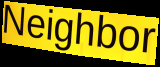
Neighbor